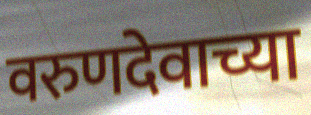
वरुणदेवाच्या